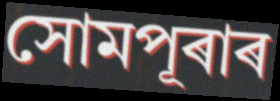
সোমপূৰাৰ